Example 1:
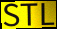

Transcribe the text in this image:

STL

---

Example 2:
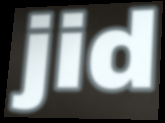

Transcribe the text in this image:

jid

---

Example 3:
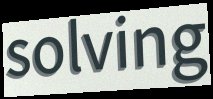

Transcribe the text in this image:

solving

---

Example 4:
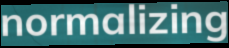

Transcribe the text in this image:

normalizing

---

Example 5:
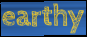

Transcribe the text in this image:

earthy